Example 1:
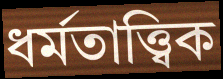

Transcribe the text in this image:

ধর্মতাত্ত্বিক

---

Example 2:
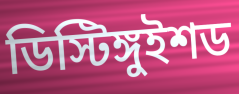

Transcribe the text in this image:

ডিস্টিঙ্গুইশড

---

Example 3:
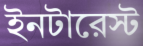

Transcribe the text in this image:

ইনটারেস্ট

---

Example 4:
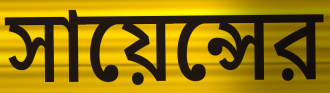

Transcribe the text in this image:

সায়েন্সের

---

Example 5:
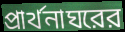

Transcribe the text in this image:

প্রার্থনাঘরের